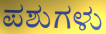
ಪಶುಗಳು